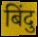
बिंदु